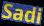
Sadi